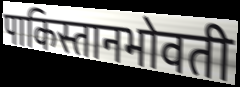
पाकिस्तानभोवती